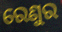
ରେଣୁର